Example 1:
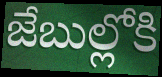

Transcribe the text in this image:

జేబుల్లోకి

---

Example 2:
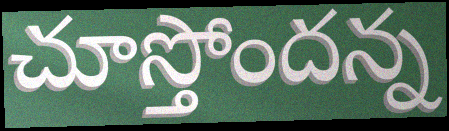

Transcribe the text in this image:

చూస్తోందన్న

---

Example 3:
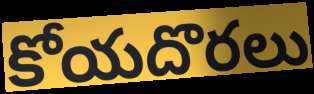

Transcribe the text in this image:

కోయదొరలు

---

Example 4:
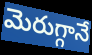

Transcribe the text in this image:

మెరుగ్గానే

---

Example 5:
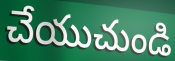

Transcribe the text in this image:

చేయుచుండి